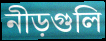
নীড়গুলি